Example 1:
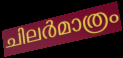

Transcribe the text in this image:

ചിലർമാത്രം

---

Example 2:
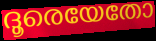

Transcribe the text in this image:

ദൂരെയേതോ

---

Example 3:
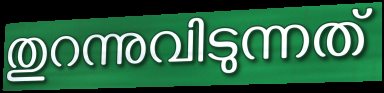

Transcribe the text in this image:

തുറന്നുവിടുന്നത്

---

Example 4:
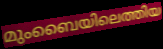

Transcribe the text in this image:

മുംബൈയിലെത്തിയ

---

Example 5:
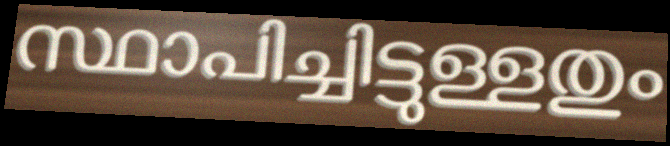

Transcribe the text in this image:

സ്ഥാപിച്ചിട്ടുള്ളതും